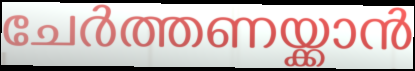
ചേർത്തണയ്ക്കാൻ